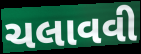
ચલાવવી